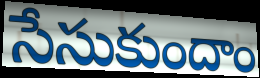
సేసుకుందాం